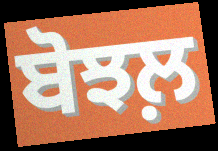
ਬੋਝਲ਼